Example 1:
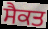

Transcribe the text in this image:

ਸੈਕਤ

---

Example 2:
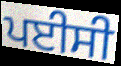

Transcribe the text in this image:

ਪਈਸੀ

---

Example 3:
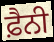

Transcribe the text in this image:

ਫ਼ੈਨੀ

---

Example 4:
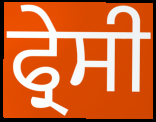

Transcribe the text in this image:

ਫ੍ਰੇਸੀ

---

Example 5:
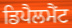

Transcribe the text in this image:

ਡਿਪੈਲਮੈਂਟ